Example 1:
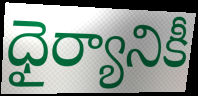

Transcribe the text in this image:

ధైర్యానికీ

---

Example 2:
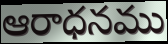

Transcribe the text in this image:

ఆరాధనము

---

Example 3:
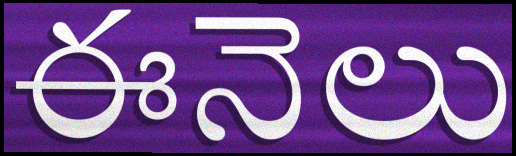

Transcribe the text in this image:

ఈనెలు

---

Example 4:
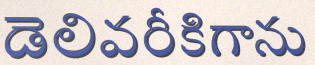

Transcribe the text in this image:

డెలివరీకిగాను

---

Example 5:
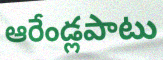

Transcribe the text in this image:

ఆరేండ్లపాటు